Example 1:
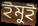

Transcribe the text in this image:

ইমুই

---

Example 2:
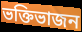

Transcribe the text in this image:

ভক্তিভাজন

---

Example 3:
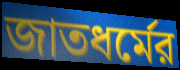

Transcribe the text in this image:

জাতধর্মের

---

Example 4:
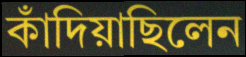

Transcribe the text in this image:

কাঁদিয়াছিলেন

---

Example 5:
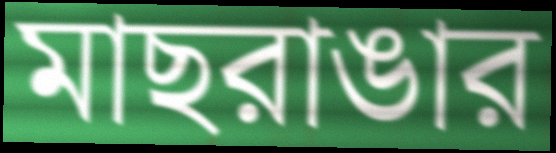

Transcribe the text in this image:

মাছরাঙার